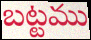
బట్టము